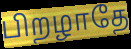
பிறழாதே